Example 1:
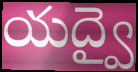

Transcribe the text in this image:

యద్వై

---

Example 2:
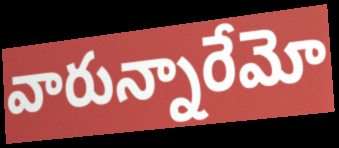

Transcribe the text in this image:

వారున్నారేమో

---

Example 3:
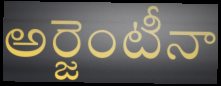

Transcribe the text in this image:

అర్జెంటీనా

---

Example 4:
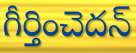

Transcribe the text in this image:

గీర్తించెదన్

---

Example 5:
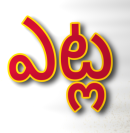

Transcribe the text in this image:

ఎట్ల